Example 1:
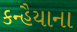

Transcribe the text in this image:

કન્હૈયાના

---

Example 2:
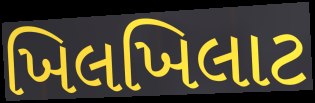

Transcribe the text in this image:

ખિલખિલાટ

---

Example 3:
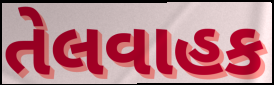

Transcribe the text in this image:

તેલવાહક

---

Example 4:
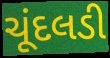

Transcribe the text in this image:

ચૂંદલડી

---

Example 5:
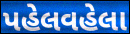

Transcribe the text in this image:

પહેલવહેલા